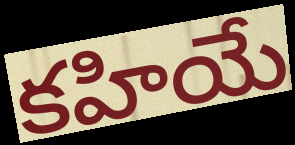
కహియే